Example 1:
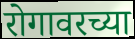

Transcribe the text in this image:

रोगावरच्या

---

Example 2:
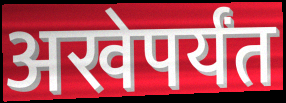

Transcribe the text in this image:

अखेपर्यंत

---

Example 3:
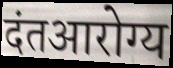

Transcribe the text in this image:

दंतआरोग्य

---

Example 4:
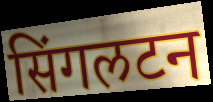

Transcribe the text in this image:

सिंगलटन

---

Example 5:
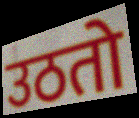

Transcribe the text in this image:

उठतो